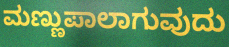
ಮಣ್ಣುಪಾಲಾಗುವುದು